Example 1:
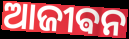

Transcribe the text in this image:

ଆଜୀଵନ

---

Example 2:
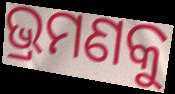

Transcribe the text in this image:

ଭ୍ରମଣକୁ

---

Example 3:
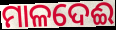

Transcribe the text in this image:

ମାଳଦେଈ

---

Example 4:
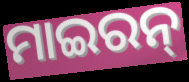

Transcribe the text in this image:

ମାଇରନ୍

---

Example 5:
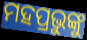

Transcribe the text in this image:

ମହପ୍ରଭୁଙ୍କୁ